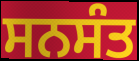
ਸਨਸੰਤ